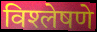
विश्लेषणे